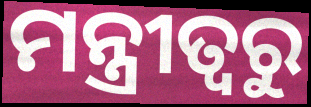
ମନ୍ତ୍ରୀତ୍ୱରୁ